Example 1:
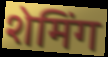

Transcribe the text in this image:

शेमिंग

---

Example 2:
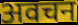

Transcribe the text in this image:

अवचन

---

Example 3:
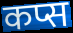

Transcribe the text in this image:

कप्स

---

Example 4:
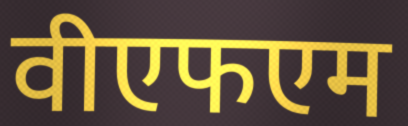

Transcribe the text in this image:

वीएफएम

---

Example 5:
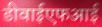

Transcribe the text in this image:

डीवाईएफआई